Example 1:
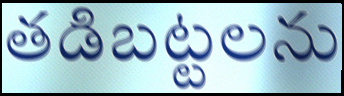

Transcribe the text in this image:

తడిబట్టలను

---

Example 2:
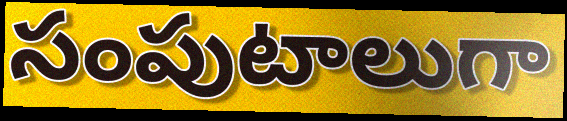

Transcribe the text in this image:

సంపుటాలుగా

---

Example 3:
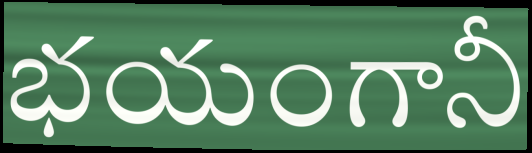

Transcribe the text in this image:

భయంగానీ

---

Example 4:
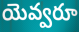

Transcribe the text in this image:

యెవ్వరూ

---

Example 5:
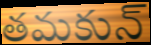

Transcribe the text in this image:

తమకున్